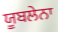
ਯੂਬਲੇਨਾ